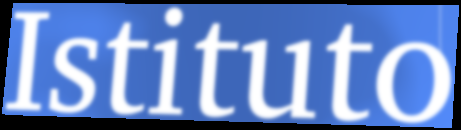
Istituto